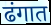
ढंगात